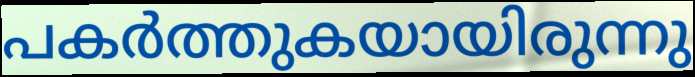
പകർത്തുകയായിരുന്നു